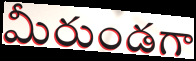
మీరుండగా